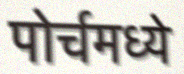
पोर्चमध्ये